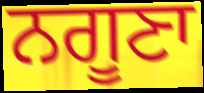
ਨਗੂਣਾ